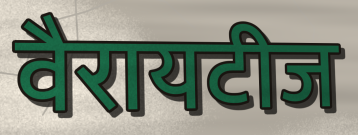
वैरायटीज